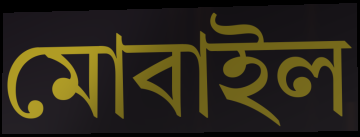
মোবাইল